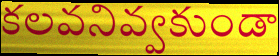
కలవనివ్వకుండా